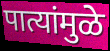
पात्यांमुळे